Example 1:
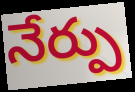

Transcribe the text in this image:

నేర్పు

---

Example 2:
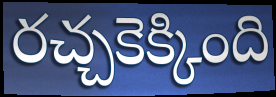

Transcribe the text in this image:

రచ్చకెక్కింది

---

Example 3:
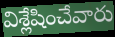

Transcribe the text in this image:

విశ్లేషించేవారు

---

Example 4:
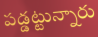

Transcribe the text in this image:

పడ్డట్టున్నారు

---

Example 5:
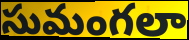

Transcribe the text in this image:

సుమంగలా